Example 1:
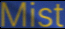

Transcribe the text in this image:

Mist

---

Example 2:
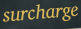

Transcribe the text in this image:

surcharge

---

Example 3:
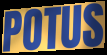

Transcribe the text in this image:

POTUS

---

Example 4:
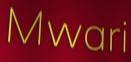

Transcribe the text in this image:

Mwari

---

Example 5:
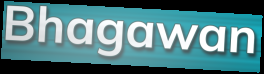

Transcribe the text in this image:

Bhagawan